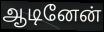
ஆடினேன்